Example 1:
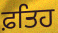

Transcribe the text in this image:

ਫ਼ਤਿਹ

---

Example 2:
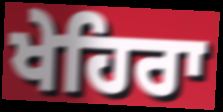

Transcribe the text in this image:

ਖੇਹਿਰਾ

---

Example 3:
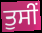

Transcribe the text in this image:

ਤੁਸੀਂ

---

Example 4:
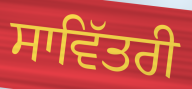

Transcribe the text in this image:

ਸਾਵਿੱਤਰੀ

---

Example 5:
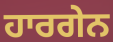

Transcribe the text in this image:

ਹਾਰਗੇਨ